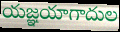
యజ్ఞయాగాదుల